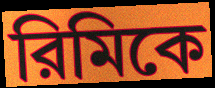
রিমিকে